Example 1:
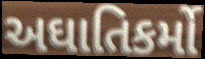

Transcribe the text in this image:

અઘાતિકર્મો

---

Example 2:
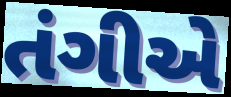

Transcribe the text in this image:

તંગીએ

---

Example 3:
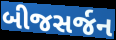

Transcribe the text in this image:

બીજસર્જન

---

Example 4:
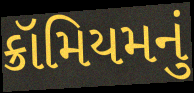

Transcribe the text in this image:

ક્રૉમિયમનું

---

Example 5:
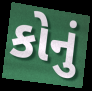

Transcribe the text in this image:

કોનું